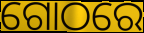
ଗୋଠରେ